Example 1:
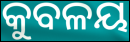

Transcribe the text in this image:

କୁବଳୟ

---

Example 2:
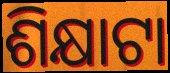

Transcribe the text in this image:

ଶିକ୍ଷାଟା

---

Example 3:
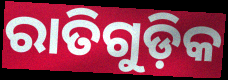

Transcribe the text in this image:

ରାତିଗୁଡ଼ିକ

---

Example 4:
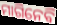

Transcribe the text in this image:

ମାଗିନେବି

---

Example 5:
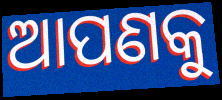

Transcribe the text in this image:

ଆପଣକୁ